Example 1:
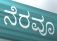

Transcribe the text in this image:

ನೆರವೂ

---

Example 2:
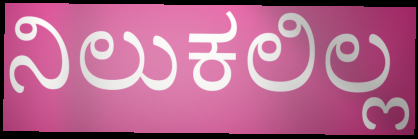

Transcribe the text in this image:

ನಿಲುಕಲಿಲ್ಲ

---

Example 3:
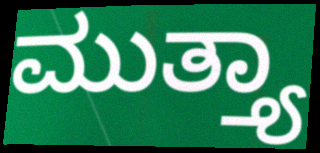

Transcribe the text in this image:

ಮುತ್ತ್ಯಾ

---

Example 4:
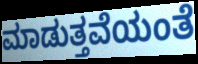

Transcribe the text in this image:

ಮಾಡುತ್ತವೆಯಂತೆ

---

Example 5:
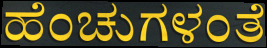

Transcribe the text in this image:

ಹೆಂಚುಗಳಂತೆ